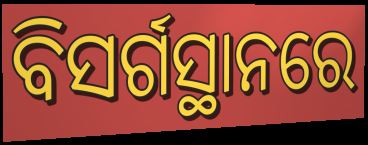
ବିସର୍ଗସ୍ଥାନରେ